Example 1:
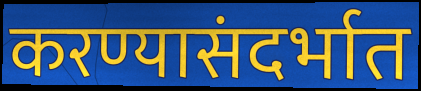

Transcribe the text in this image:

करण्यासंदर्भात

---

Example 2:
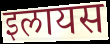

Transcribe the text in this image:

इलायस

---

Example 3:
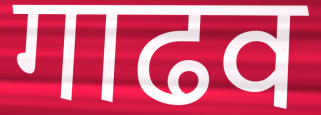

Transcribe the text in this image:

गाढव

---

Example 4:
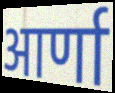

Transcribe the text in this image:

आर्णा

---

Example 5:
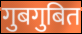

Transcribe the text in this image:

गुबगुबित